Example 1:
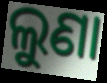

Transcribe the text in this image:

ଲୁଣା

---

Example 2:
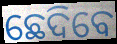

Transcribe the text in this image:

ଛେଦିବେ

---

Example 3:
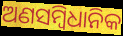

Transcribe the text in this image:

ଅଣସମ୍ବିଧାନିକ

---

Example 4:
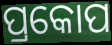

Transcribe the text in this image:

ପ୍ରକୋପ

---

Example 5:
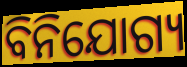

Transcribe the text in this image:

ବିନିଯୋଗ୍ୟ